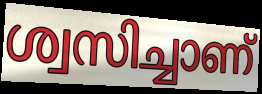
ശ്വസിച്ചാണ്